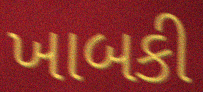
ખાબકી